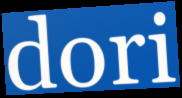
dori